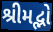
શ્રીમદ્ભો